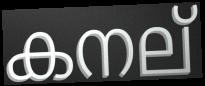
കനല്